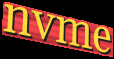
nvme